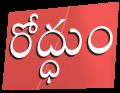
రోద్ధుం